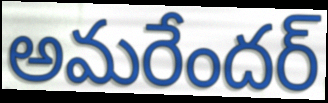
అమరేందర్